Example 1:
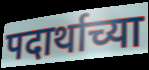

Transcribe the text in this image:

पदार्थाच्या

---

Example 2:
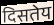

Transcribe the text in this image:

दिसतेय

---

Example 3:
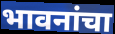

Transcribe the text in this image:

भावनांचा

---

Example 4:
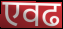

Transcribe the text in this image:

एवढ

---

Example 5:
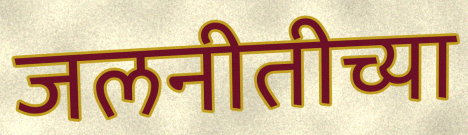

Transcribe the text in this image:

जलनीतीच्या